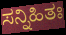
ಸನ್ನಿಹಿತಃ